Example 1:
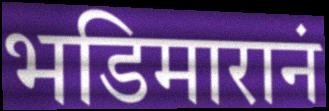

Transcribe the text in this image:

भडिमारानं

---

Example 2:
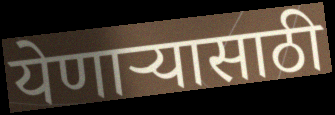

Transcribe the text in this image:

येणाऱ्यासाठी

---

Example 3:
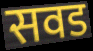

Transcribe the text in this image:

सवड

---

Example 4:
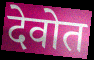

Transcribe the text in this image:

देवोत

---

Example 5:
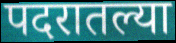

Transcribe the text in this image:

पदरातल्या